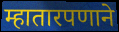
म्हातारपणाने